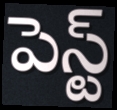
పెస్ట్